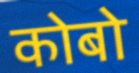
कोबो